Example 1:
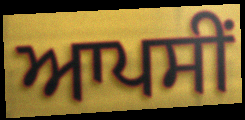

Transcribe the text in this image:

ਆਪਸੀਂ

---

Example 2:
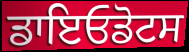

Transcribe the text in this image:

ਡਾਇਓਡੋਟਸ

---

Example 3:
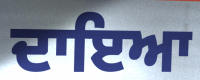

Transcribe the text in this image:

ਦਾਇਆ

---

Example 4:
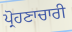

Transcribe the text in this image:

ਪ੍ਰੋਹਣਾਚਾਰੀ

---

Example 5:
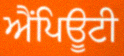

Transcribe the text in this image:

ਐਂਪਿਊਟੀ